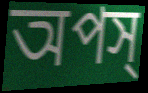
অপস্